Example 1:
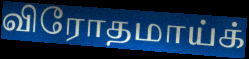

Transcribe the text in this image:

விரோதமாய்க்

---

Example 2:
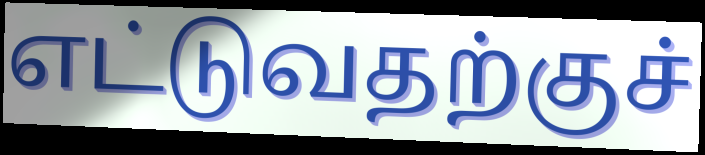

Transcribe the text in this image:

எட்டுவதற்குச்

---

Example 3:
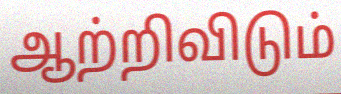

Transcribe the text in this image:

ஆற்றிவிடும்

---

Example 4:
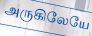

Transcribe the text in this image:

அருகிலேயே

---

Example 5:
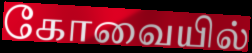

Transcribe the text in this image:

கோவையில்